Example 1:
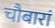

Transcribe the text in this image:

चौबारां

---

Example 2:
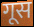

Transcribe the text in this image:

गूस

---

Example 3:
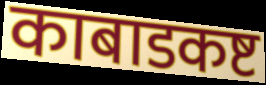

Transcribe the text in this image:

काबाडकष्ट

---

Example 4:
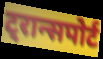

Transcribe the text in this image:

ट्रान्सपोर्ट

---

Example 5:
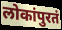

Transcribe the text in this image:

लोकांपुरतं